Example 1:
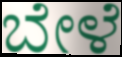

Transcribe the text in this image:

ಬೇಳೆ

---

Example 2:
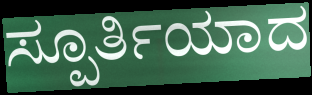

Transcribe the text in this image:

ಸ್ಪೂರ್ತಿಯಾದ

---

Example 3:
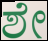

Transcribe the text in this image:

ಶೇ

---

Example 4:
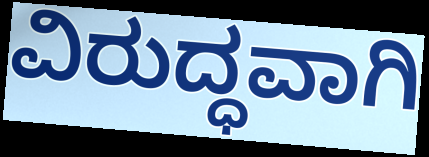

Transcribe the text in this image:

ವಿರುದ್ಧವಾಗಿ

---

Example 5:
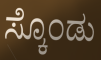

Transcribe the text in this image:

ಸ್ಕೊಂಡು